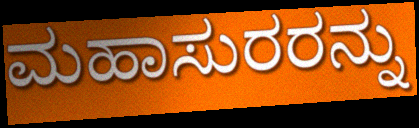
ಮಹಾಸುರರನ್ನು